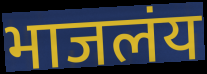
भाजलंय